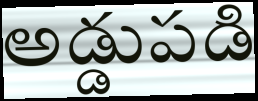
అడ్డుపడి